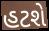
હટશે